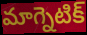
మాగ్నెటిక్